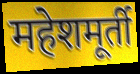
महेशमूर्ती